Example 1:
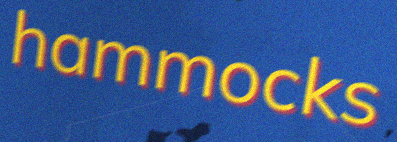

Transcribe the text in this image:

hammocks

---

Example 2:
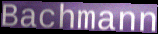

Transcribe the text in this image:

Bachmann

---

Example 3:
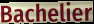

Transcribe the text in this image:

Bachelier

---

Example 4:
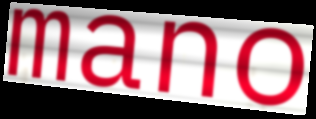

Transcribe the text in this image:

mano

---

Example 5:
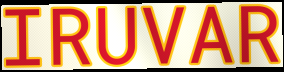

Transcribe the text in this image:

IRUVAR